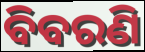
ବିବରଣି